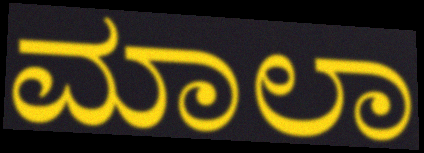
ಮಾಲಾ